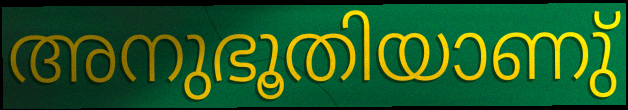
അനുഭൂതിയാണു്